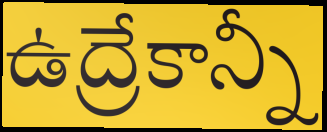
ఉద్రేకాన్నీ